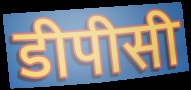
डीपीसी